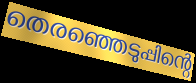
തെരഞ്ഞെടുപ്പിന്റെ